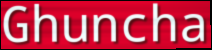
Ghuncha